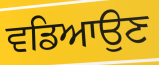
ਵਡਿਆਉਣ